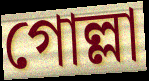
গোল্লা